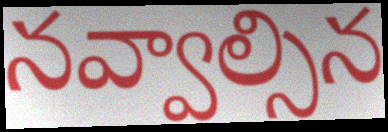
నవ్వాల్సిన